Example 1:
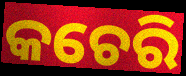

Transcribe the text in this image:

କଚେରି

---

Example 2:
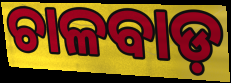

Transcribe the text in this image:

ଚାଳବାଡ଼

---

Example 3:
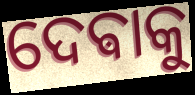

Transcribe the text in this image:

ଦେଵାକୁ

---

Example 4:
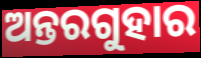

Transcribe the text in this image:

ଅନ୍ତରଗୁହାର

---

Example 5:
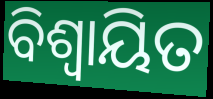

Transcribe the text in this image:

ବିଶ୍ବାୟିତ